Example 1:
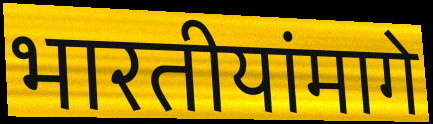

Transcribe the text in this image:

भारतीयांमागे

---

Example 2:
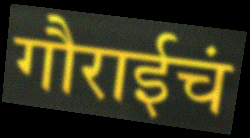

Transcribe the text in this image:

गौराईचं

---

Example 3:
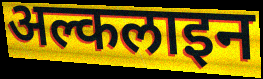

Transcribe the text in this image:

अल्कलाइन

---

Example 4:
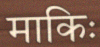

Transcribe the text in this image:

माकिः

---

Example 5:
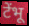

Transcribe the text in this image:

टेंभू